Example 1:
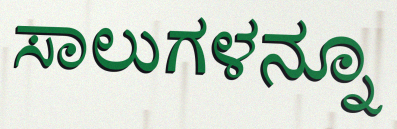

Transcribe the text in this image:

ಸಾಲುಗಳನ್ನೂ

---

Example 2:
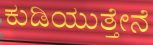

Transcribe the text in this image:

ಕುಡಿಯುತ್ತೇನೆ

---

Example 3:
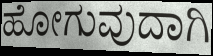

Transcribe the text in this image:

ಹೋಗುವುದಾಗಿ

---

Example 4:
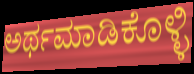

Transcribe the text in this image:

ಅರ್ಥಮಾಡಿಕೊಳ್ಳಿ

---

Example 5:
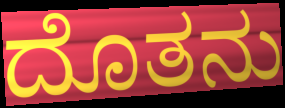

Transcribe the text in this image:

ದೊತನು